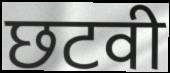
छटवी